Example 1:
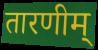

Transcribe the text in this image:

तारणीम्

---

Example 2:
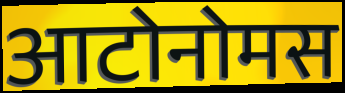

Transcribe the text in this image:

आटोनोमस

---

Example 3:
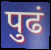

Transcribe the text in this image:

पुढं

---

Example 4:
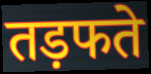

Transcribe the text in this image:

तड़फते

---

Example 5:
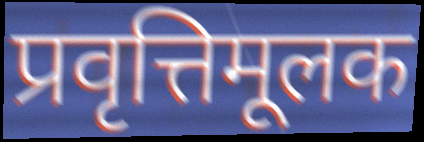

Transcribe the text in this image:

प्रवृत्तिमूलक